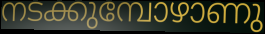
നടക്കുമ്പോഴാണു